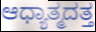
ಆಧ್ಯಾತ್ಮದತ್ತ